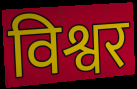
विश्वर